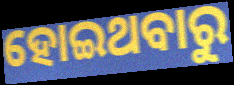
ହୋଇଥବାରୁ